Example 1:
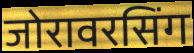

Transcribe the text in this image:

जोरावरसिंग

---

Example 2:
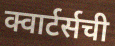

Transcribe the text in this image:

क्वार्टर्सची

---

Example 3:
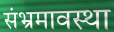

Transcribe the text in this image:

संभ्रमावस्था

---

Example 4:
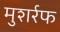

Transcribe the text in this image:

मुशर्रफ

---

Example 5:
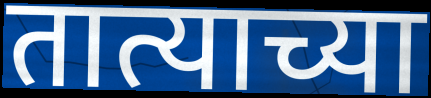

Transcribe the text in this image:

तात्याच्या